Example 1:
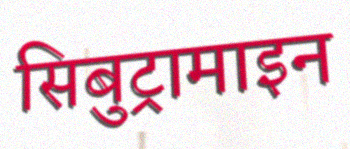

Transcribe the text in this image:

सिबुट्रामाइन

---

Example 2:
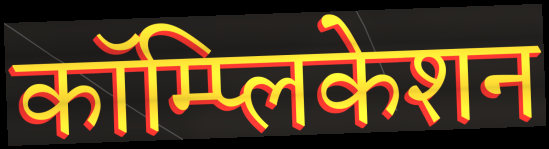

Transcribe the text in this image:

कॉम्प्लिकेशन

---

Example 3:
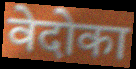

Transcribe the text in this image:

वेदोका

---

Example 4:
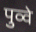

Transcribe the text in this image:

पुव्वे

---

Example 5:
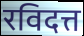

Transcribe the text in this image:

रविदत्त